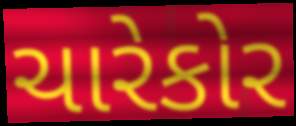
ચારેકોર